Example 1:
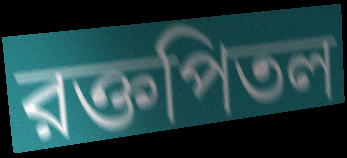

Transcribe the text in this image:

রক্তপিতল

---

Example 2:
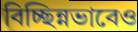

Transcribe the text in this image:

বিচ্ছিন্নভাবেও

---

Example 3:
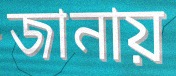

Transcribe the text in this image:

জানায়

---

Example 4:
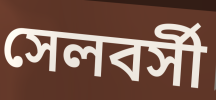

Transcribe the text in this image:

সেলবর্সী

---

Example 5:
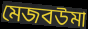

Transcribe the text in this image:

মেজবউমা